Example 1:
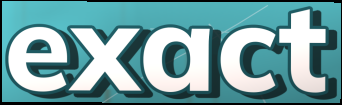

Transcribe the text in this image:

exact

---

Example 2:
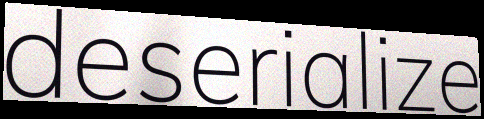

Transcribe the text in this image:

deserialize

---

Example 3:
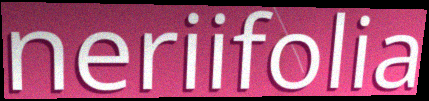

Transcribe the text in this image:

neriifolia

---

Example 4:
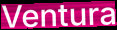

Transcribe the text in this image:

Ventura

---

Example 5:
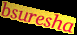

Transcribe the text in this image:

bsuresha